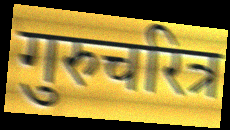
गुरुचरित्र